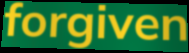
forgiven